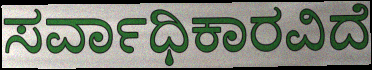
ಸರ್ವಾಧಿಕಾರವಿದೆ